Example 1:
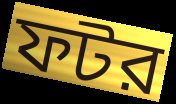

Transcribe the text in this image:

ফটর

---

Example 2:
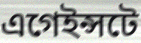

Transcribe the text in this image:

এগেইন্সটে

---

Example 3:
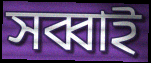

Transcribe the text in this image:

সব্বাই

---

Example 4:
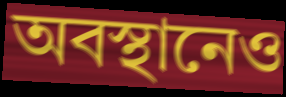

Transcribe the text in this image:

অবস্থানেও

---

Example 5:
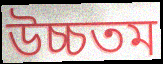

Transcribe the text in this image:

উচ্চতম